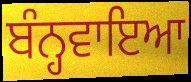
ਬੰਨ੍ਹਵਾਇਆ